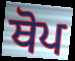
ਥੋਪ